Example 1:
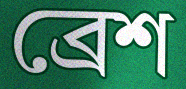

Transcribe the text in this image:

ব্রেশ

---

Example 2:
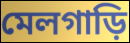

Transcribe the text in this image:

মেলগাড়ি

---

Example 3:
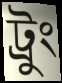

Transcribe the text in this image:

ট্রুং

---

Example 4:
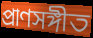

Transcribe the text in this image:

প্রাণসঙ্গীত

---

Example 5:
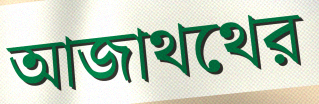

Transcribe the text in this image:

আজাথথের